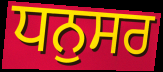
ਧਨੁਸਰ